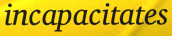
incapacitates